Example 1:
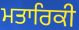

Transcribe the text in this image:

ਮਤਾਰਿਕੀ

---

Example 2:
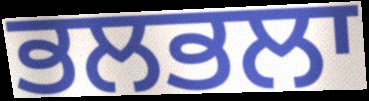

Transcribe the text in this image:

ਭਲਭਲਾ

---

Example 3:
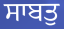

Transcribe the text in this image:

ਸਾਬਤੁ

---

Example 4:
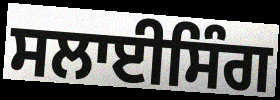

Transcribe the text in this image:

ਸਲਾਈਸਿੰਗ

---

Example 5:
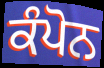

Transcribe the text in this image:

ਕੰਪੋਨ